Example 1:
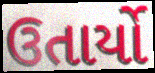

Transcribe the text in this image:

ઉતાર્યો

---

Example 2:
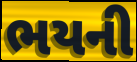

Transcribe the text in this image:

ભયની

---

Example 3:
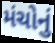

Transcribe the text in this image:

મંચોનું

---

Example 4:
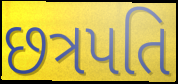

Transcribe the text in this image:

છત્રપતિ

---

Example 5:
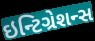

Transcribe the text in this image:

ઇન્ટિગ્રેશન્સ